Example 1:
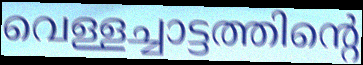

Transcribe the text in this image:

വെള്ളച്ചാട്ടത്തിന്റെ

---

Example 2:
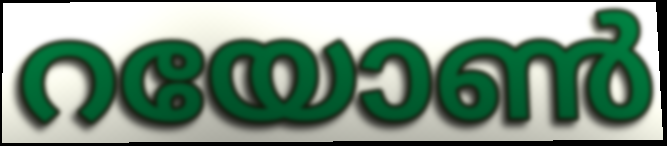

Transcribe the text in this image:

റയോൺ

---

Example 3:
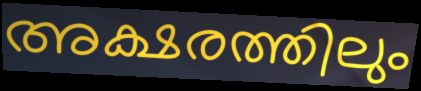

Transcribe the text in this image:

അക്ഷരത്തിലും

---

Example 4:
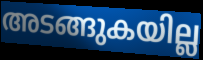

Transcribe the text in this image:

അടങ്ങുകയില്ല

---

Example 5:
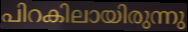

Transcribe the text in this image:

പിറകിലായിരുന്നു